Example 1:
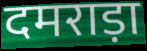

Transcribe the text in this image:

दमराड़ा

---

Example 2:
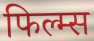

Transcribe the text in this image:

फिल्म्स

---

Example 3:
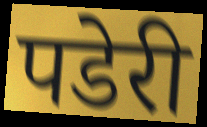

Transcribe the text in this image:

पडेरी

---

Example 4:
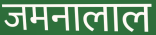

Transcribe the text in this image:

जमनालाल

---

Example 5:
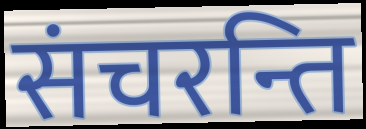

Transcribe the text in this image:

संचरन्ति